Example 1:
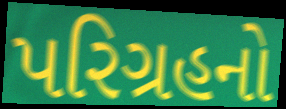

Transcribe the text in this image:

પરિગ્રહનો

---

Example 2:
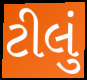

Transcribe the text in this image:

ટીલું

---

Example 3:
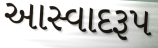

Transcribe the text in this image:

આસ્વાદરૂપ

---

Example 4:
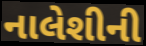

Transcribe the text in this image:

નાલેશીની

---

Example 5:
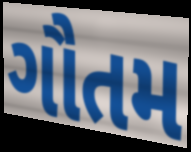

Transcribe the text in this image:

ગૌતમ